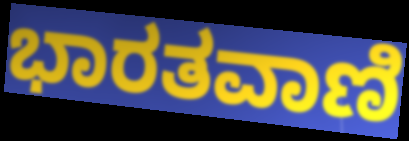
ಭಾರತವಾಣಿ